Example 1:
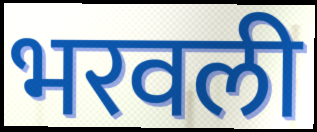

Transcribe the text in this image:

भरवली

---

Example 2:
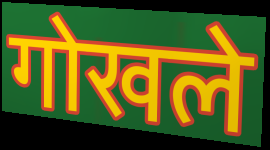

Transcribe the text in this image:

गोखले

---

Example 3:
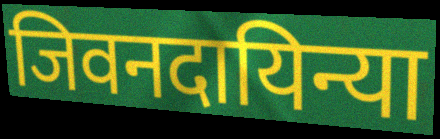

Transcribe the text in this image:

जिवनदायिन्या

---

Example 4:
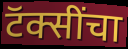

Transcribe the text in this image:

टॅक्सींचा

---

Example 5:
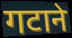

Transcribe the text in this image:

गटाने